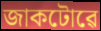
জাকটোৱে